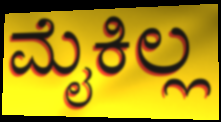
ಮೈಕಿಲ್ಲ